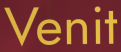
Venit